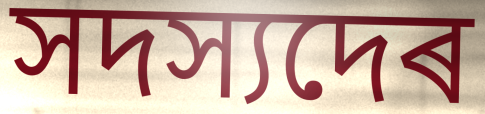
সদস্যদেৰ